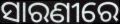
ସାରଣୀରେ